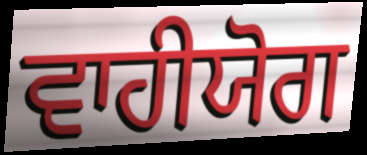
ਵਾਹੀਯੋਗ